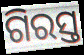
ଗିରସ୍ତ